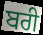
ਬਰੀ